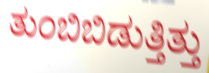
ತುಂಬಿಬಿಡುತ್ತಿತ್ತು